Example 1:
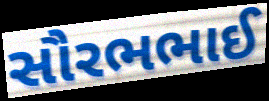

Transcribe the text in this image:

સૌરભભાઈ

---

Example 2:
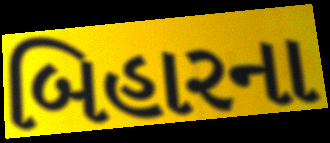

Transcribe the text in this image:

બિહારના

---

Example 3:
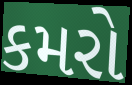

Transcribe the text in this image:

કમરો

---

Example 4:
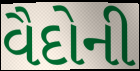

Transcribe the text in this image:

વૈદોની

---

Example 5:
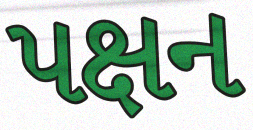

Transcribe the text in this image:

પક્ષન